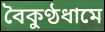
বৈকুণ্ঠধামে